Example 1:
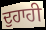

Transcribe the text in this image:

ਦੁਹਾਹੀ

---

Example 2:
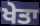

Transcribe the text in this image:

ਖੇਤਾ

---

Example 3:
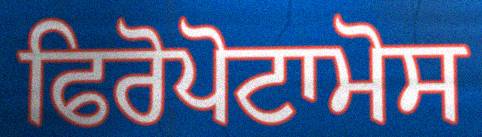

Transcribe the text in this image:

ਫਿਰੋਪੋਟਾਮੋਸ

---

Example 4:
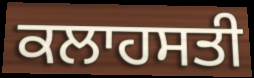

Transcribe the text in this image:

ਕਲਾਹਸਤੀ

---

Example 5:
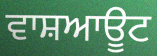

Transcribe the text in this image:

ਵਾਸ਼ਆਊਟ